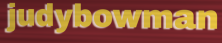
judybowman